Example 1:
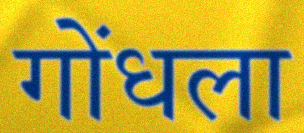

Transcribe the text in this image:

गोंधला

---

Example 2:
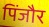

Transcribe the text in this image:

पिंजौर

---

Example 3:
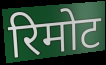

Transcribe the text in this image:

रिमोट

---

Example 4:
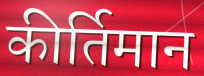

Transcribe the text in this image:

कीर्तिमान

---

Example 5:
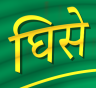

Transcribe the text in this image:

घिसे